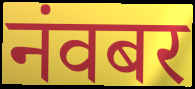
नंवबर